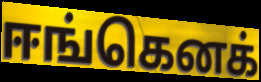
ஈங்கெனக்